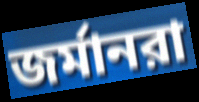
জর্মানরা